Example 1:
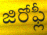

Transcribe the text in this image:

జిరోఫ్లీ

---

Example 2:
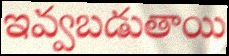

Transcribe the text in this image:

ఇవ్వబడుతాయి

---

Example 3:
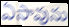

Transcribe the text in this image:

ఏసావును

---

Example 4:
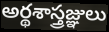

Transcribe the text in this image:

అర్థశాస్త్రజ్ఞులు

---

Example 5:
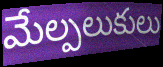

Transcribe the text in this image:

మేల్పలుకులు